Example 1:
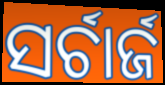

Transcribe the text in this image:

ସର୍ଚାର୍ଜ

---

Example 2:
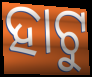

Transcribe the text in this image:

ହାଟୁ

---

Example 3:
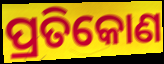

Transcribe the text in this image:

ପ୍ରତିକୋଣ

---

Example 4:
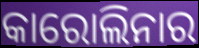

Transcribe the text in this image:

କାରୋଲିନାର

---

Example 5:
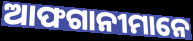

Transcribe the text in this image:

ଆଫଗାନୀମାନେ